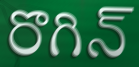
రొగిన్